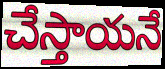
చేస్తాయనే